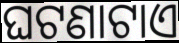
ଘଟଣାଟାଏ